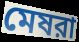
মেষরা